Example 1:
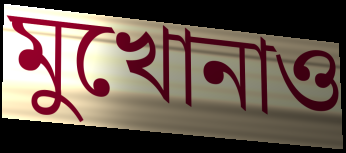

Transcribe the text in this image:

মুখোনাও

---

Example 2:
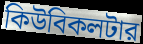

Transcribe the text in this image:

কিউবিকলটার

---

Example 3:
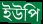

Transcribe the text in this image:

ইউপি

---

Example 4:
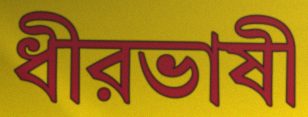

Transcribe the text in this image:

ধীরভাষী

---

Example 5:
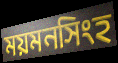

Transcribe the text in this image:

ময়মনসিংহ